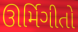
ઊર્મિગીતો